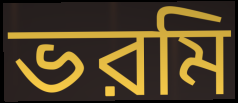
ভরমি